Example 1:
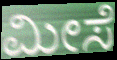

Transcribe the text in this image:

ಮೀಸೆ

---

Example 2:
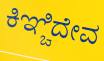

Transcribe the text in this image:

ಕಿಞ್ಚಿದೇವ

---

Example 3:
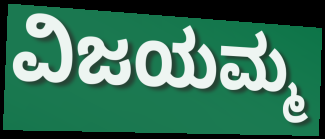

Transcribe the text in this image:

ವಿಜಯಮ್ಮ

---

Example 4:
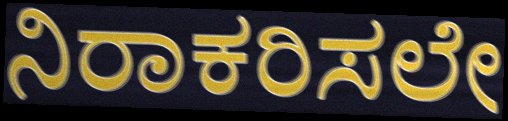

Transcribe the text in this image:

ನಿರಾಕರಿಸಲೇ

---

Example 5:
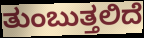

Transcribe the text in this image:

ತುಂಬುತ್ತಲಿದೆ